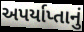
અપર્યાપ્તાનું